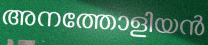
അനത്തോളിയൻ